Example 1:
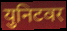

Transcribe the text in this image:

युनिटवर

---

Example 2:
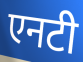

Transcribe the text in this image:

एनटी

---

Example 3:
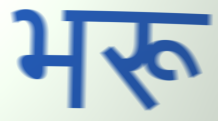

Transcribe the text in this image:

भरू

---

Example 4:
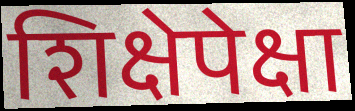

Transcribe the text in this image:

शिक्षेपेक्षा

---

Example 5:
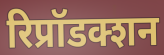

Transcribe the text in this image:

रिप्रॉडक्शन